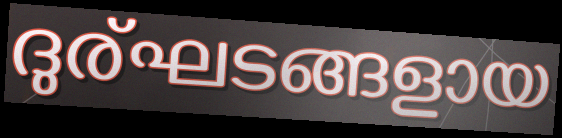
ദുര്ഘടങ്ങളായ